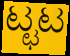
ಟ್ಟಟ